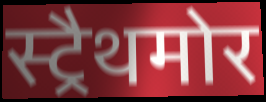
स्ट्रैथमोर